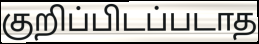
குறிப்பிடப்படாத